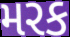
મરક